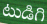
టుడిగి